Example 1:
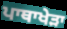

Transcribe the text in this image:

ਪਾਥਾਖੇੜਾ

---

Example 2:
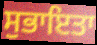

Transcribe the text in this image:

ਸੁਭਾਇਤਾ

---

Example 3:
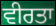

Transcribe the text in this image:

ਵੀਰਤਾ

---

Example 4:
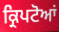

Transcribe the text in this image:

ਕ੍ਰਿਪਟੋਆਂ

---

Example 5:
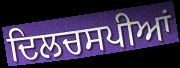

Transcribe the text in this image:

ਦਿਲਚਸਪੀਆਂ